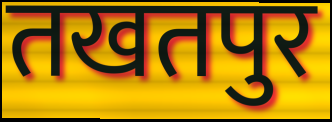
तखतपुर